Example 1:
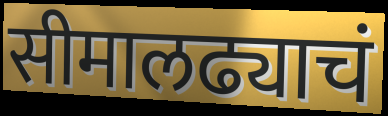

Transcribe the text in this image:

सीमालढ्याचं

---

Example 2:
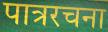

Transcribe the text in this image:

पात्ररचना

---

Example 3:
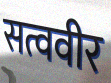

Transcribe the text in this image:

सत्ववीर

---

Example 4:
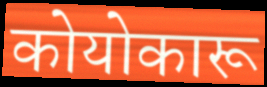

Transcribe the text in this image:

कोयोकारू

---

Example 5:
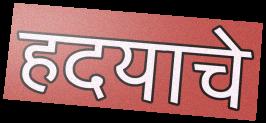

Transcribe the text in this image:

हदयाचे